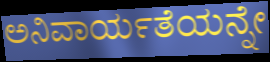
ಅನಿವಾರ್ಯತೆಯನ್ನೇ